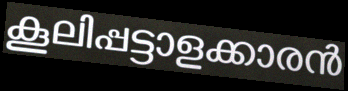
കൂലിപ്പട്ടാളക്കാരൻ